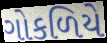
ગોકળિયે